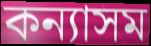
কন্যাসম